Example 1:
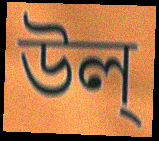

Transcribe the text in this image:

উল্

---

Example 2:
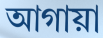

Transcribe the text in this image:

আগায়া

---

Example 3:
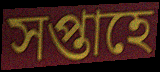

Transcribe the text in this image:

সপ্তাহে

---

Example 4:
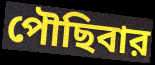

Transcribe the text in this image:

পৌছিবার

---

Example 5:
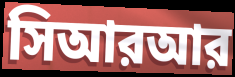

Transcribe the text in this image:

সিআরআর